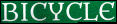
BICYCLE